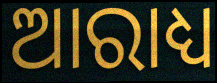
ଆରାଧ୍ୟ